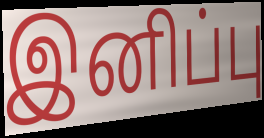
இனிப்பு